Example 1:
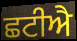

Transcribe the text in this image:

ਛਟੀਐ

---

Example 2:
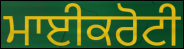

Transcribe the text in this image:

ਮਾਈਕਰੋਟੀ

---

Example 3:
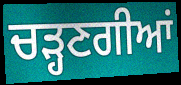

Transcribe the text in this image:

ਚੜ੍ਹਣਗੀਆਂ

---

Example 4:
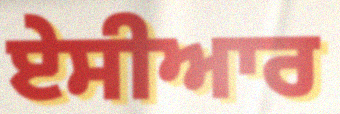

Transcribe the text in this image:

ਏਸੀਆਰ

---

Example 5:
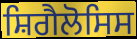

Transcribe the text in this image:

ਸ਼ਿਗੈਲੋਸਿਸ